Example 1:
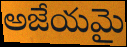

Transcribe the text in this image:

అజేయమై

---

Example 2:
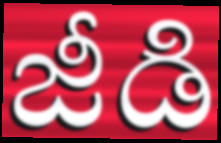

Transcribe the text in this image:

జీడి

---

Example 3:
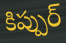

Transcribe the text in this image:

కిప్పుర్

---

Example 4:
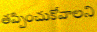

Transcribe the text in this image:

తప్పించుకోవాలని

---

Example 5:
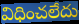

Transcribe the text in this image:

విధించలేదు